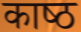
काष्‍ठ